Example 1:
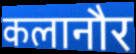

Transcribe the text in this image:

कलानौर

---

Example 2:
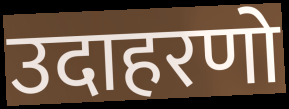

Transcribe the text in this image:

उदाहरणो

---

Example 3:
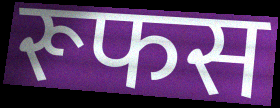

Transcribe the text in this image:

रूफस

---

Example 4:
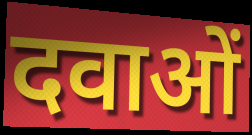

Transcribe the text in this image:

दवाओं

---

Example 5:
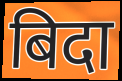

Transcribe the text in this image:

बिदा